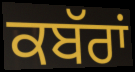
ਕਬੱਰਾਂ